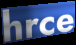
hrce